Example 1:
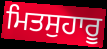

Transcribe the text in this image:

ਮਿਤਸੁਹਾਰੂ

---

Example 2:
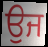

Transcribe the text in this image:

ਉਜ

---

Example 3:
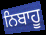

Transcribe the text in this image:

ਨਿਬਾਹੂ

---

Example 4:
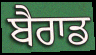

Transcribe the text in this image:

ਬੈਰਾਡ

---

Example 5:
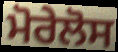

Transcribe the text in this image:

ਮੋਰੇਲੋਸ